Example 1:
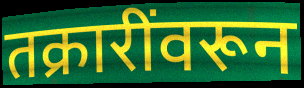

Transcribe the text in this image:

तक्रारींवरून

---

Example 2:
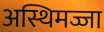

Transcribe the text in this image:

अस्थिमज्जा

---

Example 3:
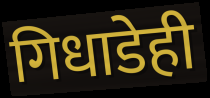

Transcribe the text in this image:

गिधाडेही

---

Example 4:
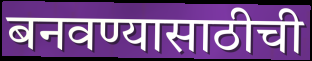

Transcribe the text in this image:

बनवण्यासाठीची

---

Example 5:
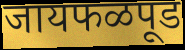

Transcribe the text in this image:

जायफळपूड